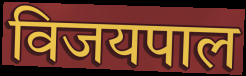
विजयपाल